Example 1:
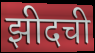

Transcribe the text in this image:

झीदची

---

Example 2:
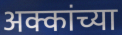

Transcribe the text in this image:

अक्कांच्या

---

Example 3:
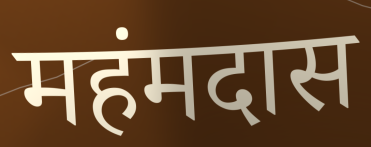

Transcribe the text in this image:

महंमदास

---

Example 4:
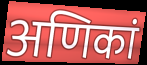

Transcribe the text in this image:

अणिकां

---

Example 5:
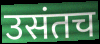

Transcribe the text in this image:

उसंतच